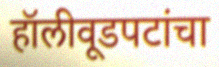
हॉलीवूडपटांचा